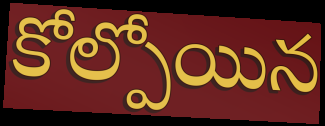
కోల్పోయిన